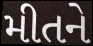
મીતને